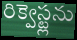
రిక్వెస్ట్లను